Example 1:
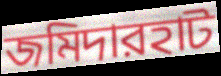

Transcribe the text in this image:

জমিদারহাট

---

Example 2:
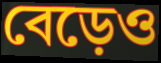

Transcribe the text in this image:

বেড়েও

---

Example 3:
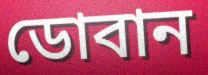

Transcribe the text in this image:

ডোবান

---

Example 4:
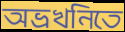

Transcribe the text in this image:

অভ্রখনিতে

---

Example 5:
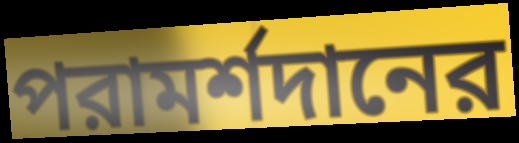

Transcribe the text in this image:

পরামর্শদানের